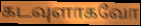
கடவுளாகவோ